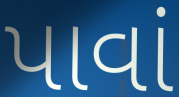
પાવાં